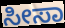
ಸೀಸಾ